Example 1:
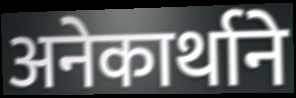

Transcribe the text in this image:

अनेकार्थाने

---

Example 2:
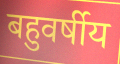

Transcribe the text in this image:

बहुवर्षीय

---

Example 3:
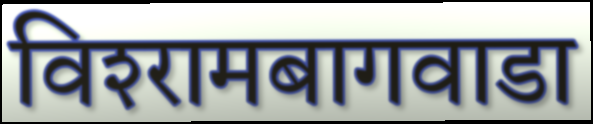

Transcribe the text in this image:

विश्रामबागवाडा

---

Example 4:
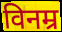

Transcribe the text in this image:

विनम्र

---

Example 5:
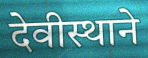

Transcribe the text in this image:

देवीस्थाने